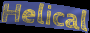
Helical